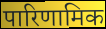
पारिणामिक